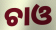
ଚାଓ